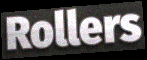
Rollers